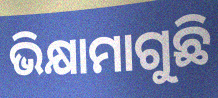
ଭିକ୍ଷାମାଗୁଛି